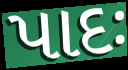
પાદઃ